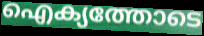
ഐക്യത്തോടെ